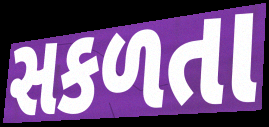
સકળતા